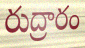
రుద్రారం